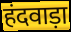
हंदवाड़ा